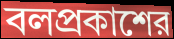
বলপ্রকাশের